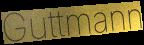
Guttmann